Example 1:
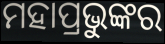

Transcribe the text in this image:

ମହାପ୍ରଭୁଙ୍କର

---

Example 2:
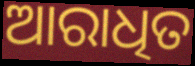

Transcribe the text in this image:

ଆରାଧିତ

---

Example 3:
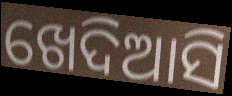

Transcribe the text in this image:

ଖେଦିଆସି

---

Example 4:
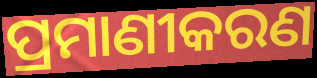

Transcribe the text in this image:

ପ୍ରମାଣୀକରଣ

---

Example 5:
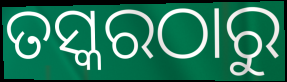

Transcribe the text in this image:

ତସ୍କରଠାରୁ